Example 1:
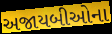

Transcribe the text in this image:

અજાયબીઓના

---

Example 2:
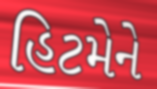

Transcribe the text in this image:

હિટમેને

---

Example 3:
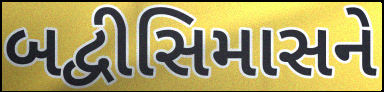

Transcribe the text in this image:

બદ્વીસિમાસને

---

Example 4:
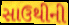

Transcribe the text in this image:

સાઉથીની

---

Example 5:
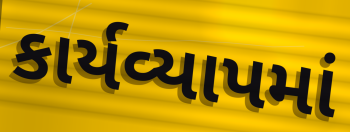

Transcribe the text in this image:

કાર્યવ્યાપમાં